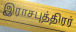
இராசபுத்திரர்